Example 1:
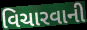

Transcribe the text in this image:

વિચારવાની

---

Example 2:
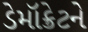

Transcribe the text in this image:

ડેમૉક્રેટને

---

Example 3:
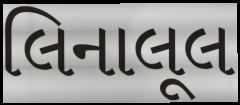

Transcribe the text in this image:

લિનાલૂલ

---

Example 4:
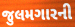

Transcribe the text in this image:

જુલમગારની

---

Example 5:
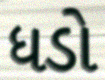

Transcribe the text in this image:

ધડો